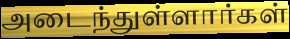
அடைந்துள்ளார்கள்